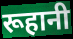
रूहानी